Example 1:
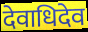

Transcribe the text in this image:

देवाधिदेव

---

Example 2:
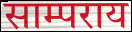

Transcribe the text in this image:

साम्पराय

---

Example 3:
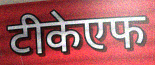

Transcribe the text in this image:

टीकेएफ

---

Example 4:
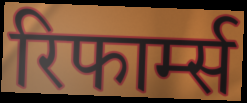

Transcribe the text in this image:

रिफार्म्स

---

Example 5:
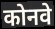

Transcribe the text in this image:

कोनवे